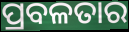
ପ୍ରବଳତାର